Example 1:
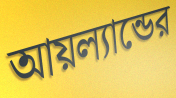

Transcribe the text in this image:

আয়ল্যান্ডের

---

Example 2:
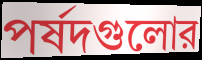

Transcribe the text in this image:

পর্ষদগুলোর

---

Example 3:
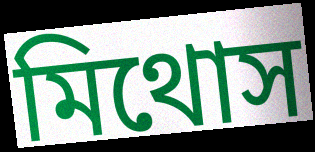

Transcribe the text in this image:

মিথোস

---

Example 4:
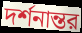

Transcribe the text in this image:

দর্শনান্তর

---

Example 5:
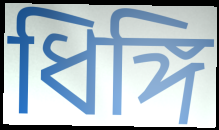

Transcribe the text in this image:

ধিঙ্গি